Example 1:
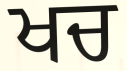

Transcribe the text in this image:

ਖਚ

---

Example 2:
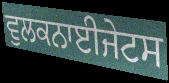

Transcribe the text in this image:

ਵੁਲਕਨਾਈਜੇਟਸ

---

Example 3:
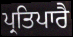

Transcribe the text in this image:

ਪ੍ਰਤਿਪਾਰੈ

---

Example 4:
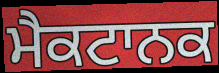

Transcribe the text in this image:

ਮੈਕਟਾਨਕ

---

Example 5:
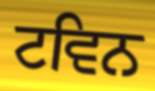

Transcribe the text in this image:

ਟਵਿਨ